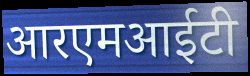
आरएमआईटी